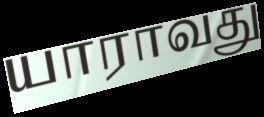
யாராவது